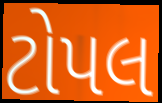
ટોપલ